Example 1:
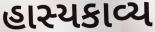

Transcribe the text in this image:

હાસ્યકાવ્ય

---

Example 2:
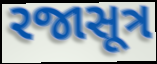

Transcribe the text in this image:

રજાસૂત્ર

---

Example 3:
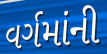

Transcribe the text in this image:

વર્ગમાંની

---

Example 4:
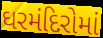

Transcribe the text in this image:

ઘરમંદિરોમાં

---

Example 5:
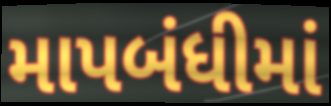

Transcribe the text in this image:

માપબંધીમાં